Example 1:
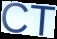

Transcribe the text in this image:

CT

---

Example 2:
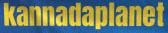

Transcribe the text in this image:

kannadaplanet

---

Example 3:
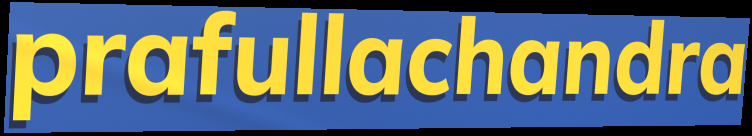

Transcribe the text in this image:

prafullachandra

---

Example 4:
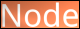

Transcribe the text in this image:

Node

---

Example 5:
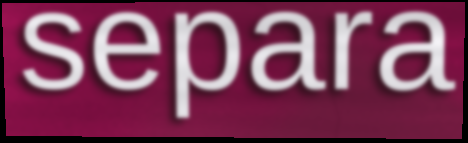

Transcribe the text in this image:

separa